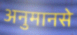
अनुमानसे